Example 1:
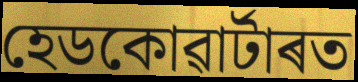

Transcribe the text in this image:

হেডকোৱাৰ্টাৰত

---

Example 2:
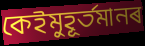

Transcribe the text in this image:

কেইমুহূৰ্তমানৰ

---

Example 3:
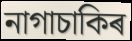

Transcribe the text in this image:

নাগাচাকিৰ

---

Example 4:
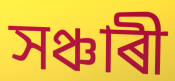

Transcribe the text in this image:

সঞ্চাৰী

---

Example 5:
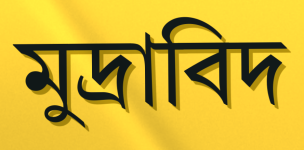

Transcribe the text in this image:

মুদ্ৰাবিদ